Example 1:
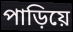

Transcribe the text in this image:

পাড়িয়ে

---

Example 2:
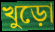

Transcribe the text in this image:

খুড়ো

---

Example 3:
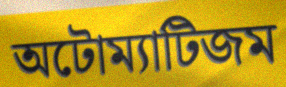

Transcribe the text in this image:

অটোম্যাটিজম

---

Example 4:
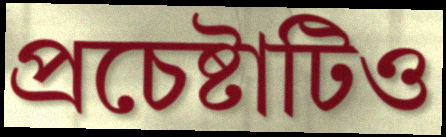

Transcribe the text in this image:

প্রচেষ্টাটিও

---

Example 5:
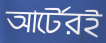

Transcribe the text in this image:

আর্টেরই